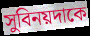
সুবিনয়দাকে